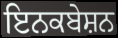
ਇਨਕਬੇਸ਼ਨ